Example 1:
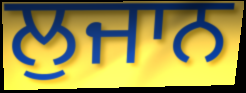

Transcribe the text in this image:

ਲੁਜਾਨ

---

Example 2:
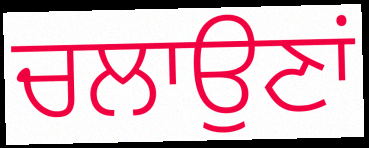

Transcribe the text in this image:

ਚਲਾਉਣਾਂ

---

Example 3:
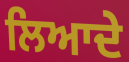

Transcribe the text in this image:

ਲਿਆਦੇ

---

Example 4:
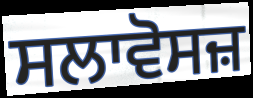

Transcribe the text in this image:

ਸਲਾਵੋਸਜ਼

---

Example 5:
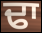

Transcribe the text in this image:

ਢਾ